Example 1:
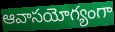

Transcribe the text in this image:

ఆవాసయోగ్యంగా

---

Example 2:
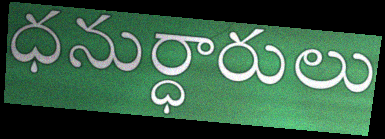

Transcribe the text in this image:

ధనుర్ధారులు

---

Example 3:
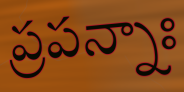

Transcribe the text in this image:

ప్రపన్నాః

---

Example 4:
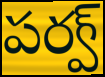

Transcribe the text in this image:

పర్వ్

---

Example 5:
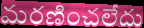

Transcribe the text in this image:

మరణించలేదు